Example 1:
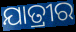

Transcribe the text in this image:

ଯାତ୍ରୀର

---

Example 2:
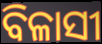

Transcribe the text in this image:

ବିଳାସୀ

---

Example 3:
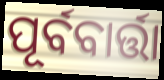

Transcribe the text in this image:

ପୂର୍ବବାର୍ତ୍ତା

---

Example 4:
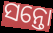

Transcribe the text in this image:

ସନ୍ତୋ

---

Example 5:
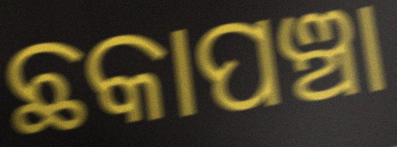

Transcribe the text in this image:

ଛକାପଞ୍ଚା